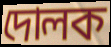
দোলক